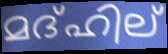
മദ്ഹില്